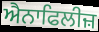
ਐਨਾਫਿਲੀਜ਼